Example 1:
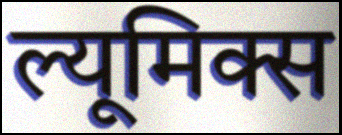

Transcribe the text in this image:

ल्यूमिक्स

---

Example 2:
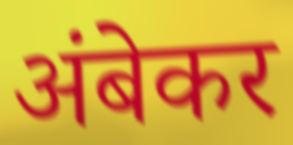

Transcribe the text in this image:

अंबेकर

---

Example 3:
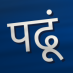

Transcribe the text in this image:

पढूं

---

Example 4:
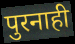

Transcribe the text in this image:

पुरनाही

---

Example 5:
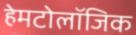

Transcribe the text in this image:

हेमटोलॉजिक